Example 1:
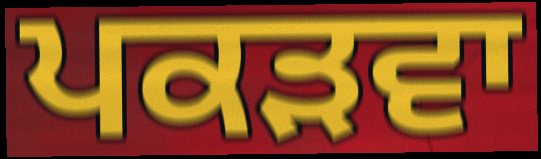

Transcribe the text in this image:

ਪਕੜਵਾ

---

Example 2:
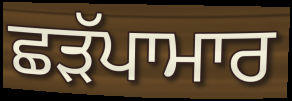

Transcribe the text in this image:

ਛੜੱਪਾਮਾਰ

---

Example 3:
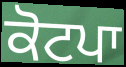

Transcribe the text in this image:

ਕੋਟਪਾ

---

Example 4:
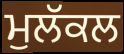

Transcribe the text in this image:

ਮੁਲੱਕਲ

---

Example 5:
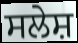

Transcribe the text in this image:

ਸਲੇਸ਼